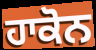
ਹਾਕੋਨ